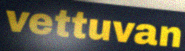
vettuvan